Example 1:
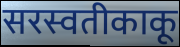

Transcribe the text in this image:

सरस्वतीकाकू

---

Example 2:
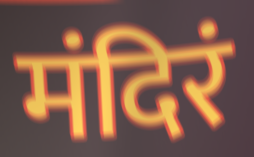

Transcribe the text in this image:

मंदिरं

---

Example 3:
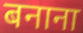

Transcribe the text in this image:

बनाना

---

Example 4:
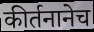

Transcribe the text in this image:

कीर्तनानेच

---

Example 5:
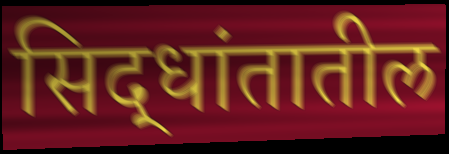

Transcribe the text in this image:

सिद्धांतातील